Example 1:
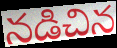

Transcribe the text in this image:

నడిచిన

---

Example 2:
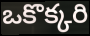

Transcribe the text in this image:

ఒకొక్కరి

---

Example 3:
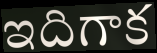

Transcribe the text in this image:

ఇదిగాక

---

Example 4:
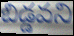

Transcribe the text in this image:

బిడ్డవని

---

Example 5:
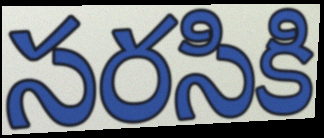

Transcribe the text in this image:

సరసికి